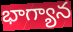
భాగ్యాన